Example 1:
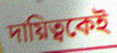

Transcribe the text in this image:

দায়িত্বকেই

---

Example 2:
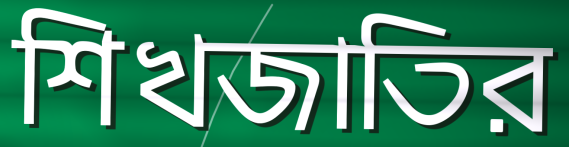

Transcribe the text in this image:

শিখজাতির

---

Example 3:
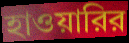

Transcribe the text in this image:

হাওয়ারির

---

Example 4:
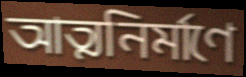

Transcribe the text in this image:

আত্মনির্মাণে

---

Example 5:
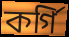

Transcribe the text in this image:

কর্গি